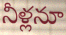
నీళ్లనూ